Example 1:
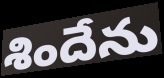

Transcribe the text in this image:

శిందేను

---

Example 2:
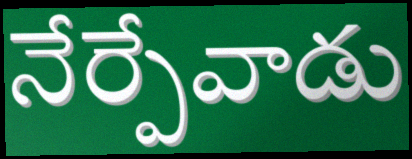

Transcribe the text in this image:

నేర్పేవాడు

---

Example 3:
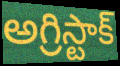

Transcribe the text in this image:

అగ్రిస్టాక్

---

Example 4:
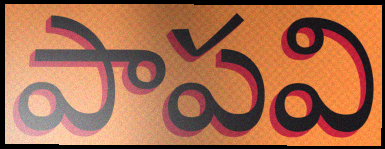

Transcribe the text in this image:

పాపవి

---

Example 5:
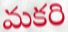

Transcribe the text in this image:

మకరి